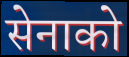
सेनाको